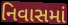
નિવાસમાં